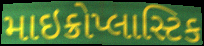
માઇક્રોપ્લાસ્ટિક